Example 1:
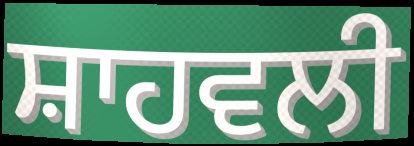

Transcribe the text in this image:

ਸ਼ਾਹਵਲੀ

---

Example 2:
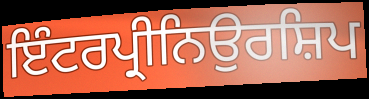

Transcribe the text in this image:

ਇੰਟਰਪ੍ਰੀਨਿਉਰਸ਼ਿਪ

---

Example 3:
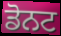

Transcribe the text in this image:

ਡੋਨਟ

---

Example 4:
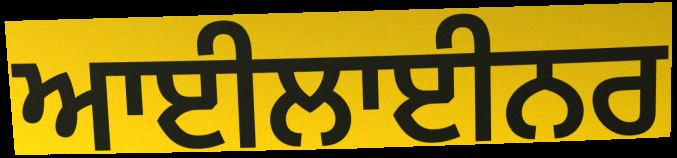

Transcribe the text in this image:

ਆਈਲਾਈਨਰ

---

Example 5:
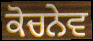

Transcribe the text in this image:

ਕੋਚਨੇਵ